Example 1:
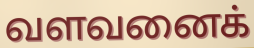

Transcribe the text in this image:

வளவனைக்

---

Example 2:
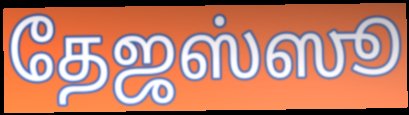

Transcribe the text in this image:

தேஜஸ்ஸூ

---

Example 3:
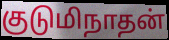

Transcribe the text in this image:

குடுமிநாதன்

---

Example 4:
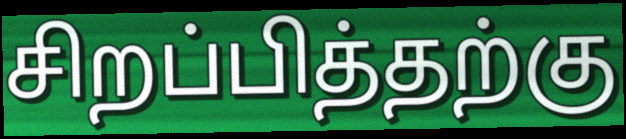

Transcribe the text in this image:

சிறப்பித்தற்கு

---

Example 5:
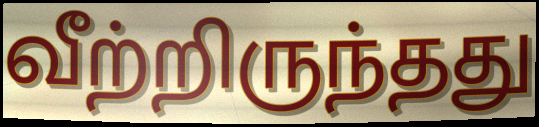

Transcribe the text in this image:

வீற்றிருந்தது